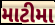
માટીમા